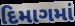
દિમાગમાં